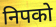
निपको